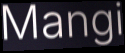
Mangi